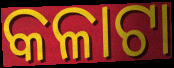
କଳାଟା